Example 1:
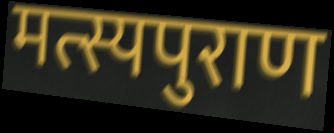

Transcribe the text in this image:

मत्स्यपुराण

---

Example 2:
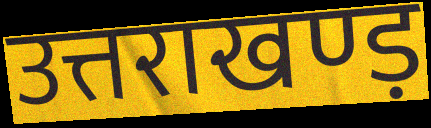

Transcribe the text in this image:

उत्तराखण्ड़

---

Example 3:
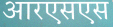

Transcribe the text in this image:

आरएसएस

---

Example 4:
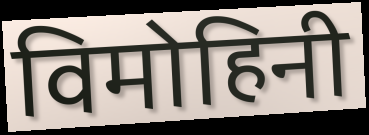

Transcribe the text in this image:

विमोहिनी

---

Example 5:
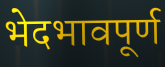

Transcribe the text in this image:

भेदभावपूर्ण